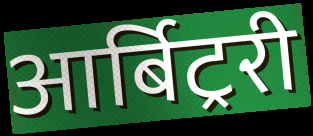
आर्बिट्ररी